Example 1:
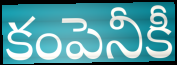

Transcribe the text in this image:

కంపెనీకీ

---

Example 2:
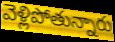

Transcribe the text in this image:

వెళ్లిపోతున్నారు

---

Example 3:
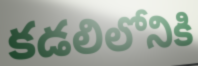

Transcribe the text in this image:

కడలిలోనికి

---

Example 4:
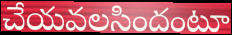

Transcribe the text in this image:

చేయవలసిందంటూ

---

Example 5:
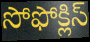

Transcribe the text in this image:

సోఫోక్లిస్